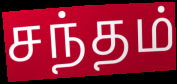
சந்தம்